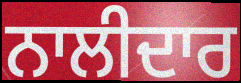
ਨਾਲੀਦਾਰ